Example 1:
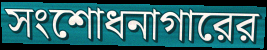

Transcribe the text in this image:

সংশোধনাগারের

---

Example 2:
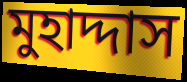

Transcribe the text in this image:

মুহাদ্দাস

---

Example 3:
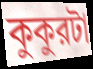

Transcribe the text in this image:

কুকুরটা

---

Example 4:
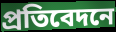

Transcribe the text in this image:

প্রতিবেদনে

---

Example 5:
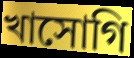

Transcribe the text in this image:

খাসোগি